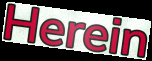
Herein